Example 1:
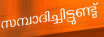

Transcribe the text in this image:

സമ്പാദിച്ചിട്ടുണ്ടു്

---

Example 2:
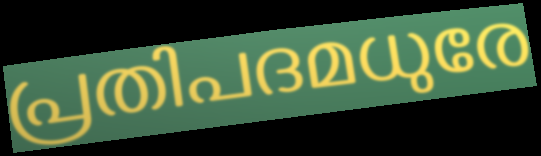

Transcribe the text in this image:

പ്രതിപദമധുരേ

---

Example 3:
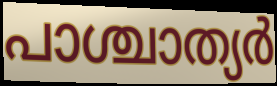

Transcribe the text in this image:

പാശ്ചാത്യർ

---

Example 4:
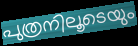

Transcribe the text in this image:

പുത്രനിലൂടെയും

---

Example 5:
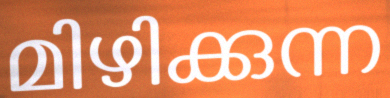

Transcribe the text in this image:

മിഴിക്കുന്ന